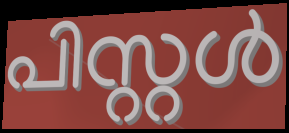
പിസ്റ്റൾ